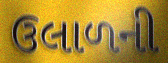
ઉલાળની